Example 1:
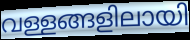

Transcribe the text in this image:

വള്ളങ്ങളിലായി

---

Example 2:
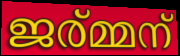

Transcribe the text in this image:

ജര്മ്മന്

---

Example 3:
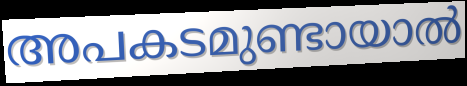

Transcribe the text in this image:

അപകടമുണ്ടായാൽ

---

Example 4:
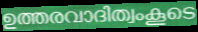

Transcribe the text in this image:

ഉത്തരവാദിത്വംകൂടെ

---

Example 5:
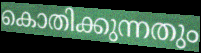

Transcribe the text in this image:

കൊതിക്കുന്നതും